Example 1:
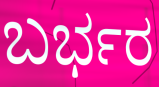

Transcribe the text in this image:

ಬರ್ಭರ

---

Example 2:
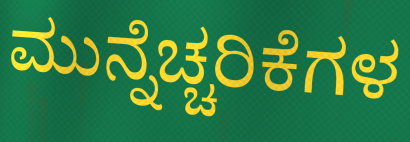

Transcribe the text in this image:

ಮುನ್ನೆಚ್ಚರಿಕೆಗಳ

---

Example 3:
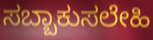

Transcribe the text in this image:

ಸಬ್ಬಾಕುಸಲೇಹಿ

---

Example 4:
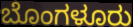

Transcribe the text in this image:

ಬೊಂಗಳೂರು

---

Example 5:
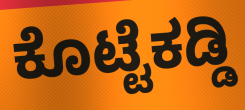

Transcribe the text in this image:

ಕೊಟ್ಟೆಕಡ್ಡಿ